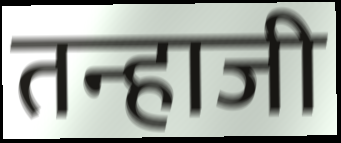
तन्हाजी